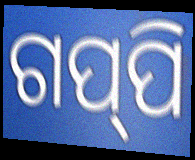
ଗପ୍‌ପି